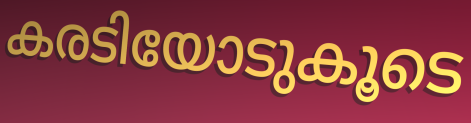
കരടിയോടുകൂടെ